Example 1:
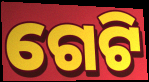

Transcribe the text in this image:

ଗେଟି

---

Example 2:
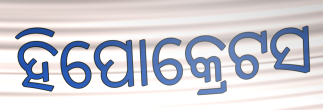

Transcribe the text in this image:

ହିପୋକ୍ରେଟସ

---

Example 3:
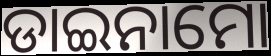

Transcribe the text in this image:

ଡାଇନାମୋ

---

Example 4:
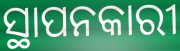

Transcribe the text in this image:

ସ୍ଥାପନକାରୀ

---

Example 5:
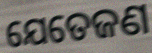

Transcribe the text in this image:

ଯେତେଜଣ